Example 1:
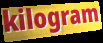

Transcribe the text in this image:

kilogram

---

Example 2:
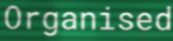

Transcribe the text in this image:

Organised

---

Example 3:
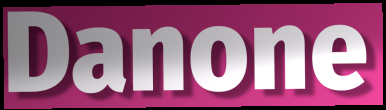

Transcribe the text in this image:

Danone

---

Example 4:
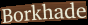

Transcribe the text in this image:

Borkhade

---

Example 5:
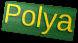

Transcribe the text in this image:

Polya